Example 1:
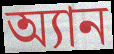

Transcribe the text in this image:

অ্যান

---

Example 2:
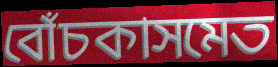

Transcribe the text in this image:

বোঁচকাসমেত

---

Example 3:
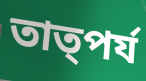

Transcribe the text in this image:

তাত্পর্য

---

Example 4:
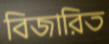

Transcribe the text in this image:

বিজারিত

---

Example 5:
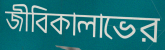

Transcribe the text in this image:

জীবিকালাভের